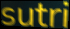
sutri